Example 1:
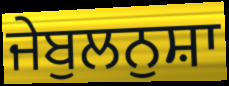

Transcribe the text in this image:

ਜੇਬੁਲਨੁਸ਼ਾ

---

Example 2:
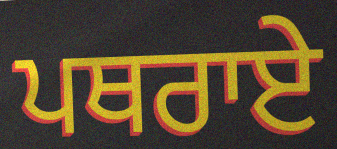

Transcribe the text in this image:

ਪਥਰਾਏ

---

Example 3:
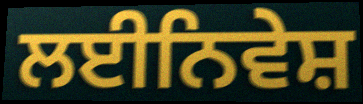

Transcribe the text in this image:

ਲਈਨਿਵੇਸ਼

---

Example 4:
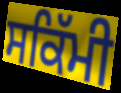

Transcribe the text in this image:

ਸਕਿੱਮੀ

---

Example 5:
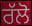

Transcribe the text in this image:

ਰੱਲੋ